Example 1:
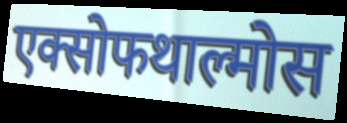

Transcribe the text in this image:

एक्सोफथाल्मोस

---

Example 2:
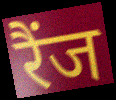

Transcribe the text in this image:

रैंज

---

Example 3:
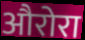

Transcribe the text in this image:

औरोरा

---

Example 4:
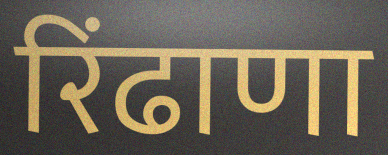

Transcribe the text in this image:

रिंढाणा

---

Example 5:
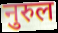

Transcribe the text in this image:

नुरुल